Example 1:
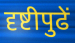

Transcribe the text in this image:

दृष्टीपुढें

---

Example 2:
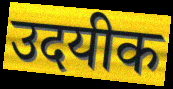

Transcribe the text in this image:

उदयीक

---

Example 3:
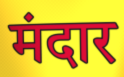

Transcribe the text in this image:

मंदार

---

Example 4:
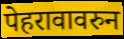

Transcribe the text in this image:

पेहरावावरुन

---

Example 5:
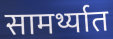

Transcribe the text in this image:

सामर्थ्यात